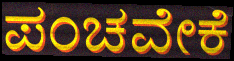
ಪಂಚವೇಕೆ